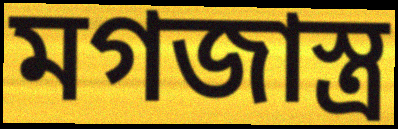
মগজাস্ত্র